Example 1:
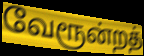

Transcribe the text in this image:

வேரூன்றத்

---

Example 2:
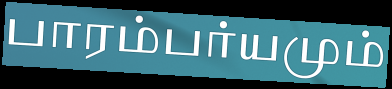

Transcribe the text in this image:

பாரம்பர்யமும்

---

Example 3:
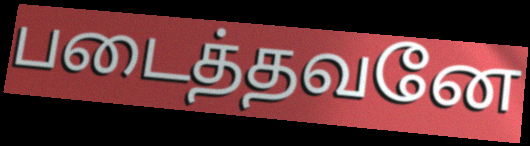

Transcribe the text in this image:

படைத்தவனே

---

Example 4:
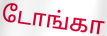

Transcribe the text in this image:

டோங்கா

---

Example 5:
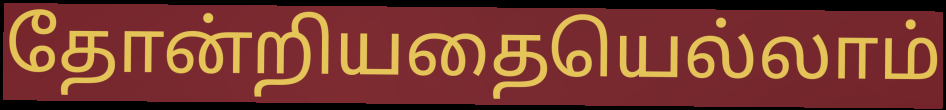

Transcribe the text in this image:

தோன்றியதையெல்லாம்